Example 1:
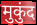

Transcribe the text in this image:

मुकुंद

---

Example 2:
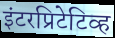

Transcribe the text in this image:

इंटरप्रिटेटिव्ह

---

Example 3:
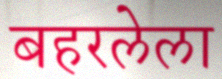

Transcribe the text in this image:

बहरलेला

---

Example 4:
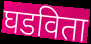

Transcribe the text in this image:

घडविता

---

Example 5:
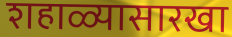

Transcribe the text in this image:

शहाळ्यासारखा